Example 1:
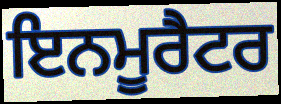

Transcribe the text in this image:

ਇਨਮੂਰੈਟਰ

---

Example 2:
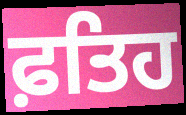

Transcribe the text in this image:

ਫ਼ਤਿਹ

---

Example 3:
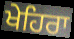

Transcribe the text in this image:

ਖੇਹਿਰਾ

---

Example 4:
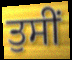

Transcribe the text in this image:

ਤੁਸੀਂ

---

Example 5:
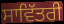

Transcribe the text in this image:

ਸਾਵਿੱਤਰੀ